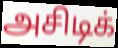
அசிடிக்